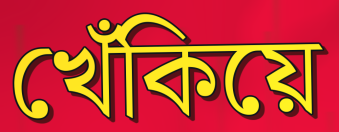
খেঁকিয়ে